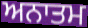
ਅਨਾਤਮ